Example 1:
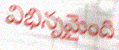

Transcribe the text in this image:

విభిన్నమైంది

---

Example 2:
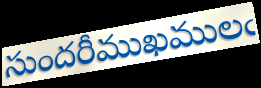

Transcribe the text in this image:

సుందరీముఖములఁ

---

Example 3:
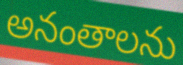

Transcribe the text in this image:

అనంతాలను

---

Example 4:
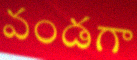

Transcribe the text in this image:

వండగా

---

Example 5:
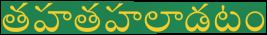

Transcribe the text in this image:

తహతహలాడటం